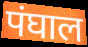
पंघाल